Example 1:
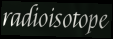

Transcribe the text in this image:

radioisotope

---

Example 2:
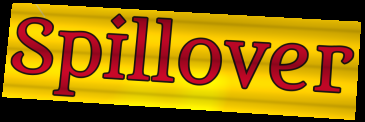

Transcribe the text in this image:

Spillover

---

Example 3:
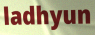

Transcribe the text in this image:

ladhyun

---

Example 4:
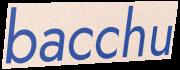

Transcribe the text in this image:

bacchu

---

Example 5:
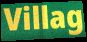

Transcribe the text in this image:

Villag